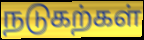
நடுகற்கள்